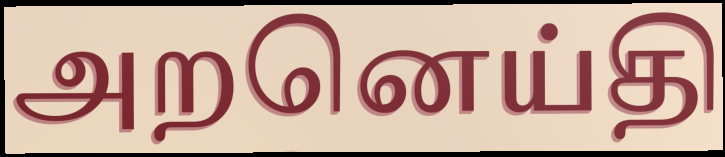
அறனெய்தி